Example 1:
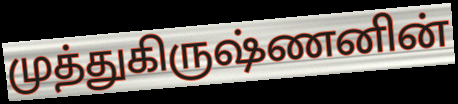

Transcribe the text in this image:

முத்துகிருஷ்ணனின்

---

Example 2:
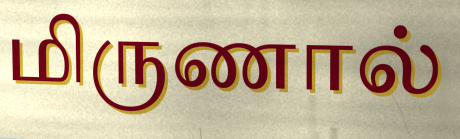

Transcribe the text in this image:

மிருணால்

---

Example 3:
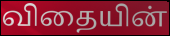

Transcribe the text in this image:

விதையின்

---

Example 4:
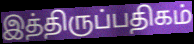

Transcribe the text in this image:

இத்திருப்பதிகம்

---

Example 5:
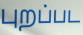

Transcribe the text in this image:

புறப்பட